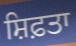
ਸ਼ਿਫ਼ਤਾ